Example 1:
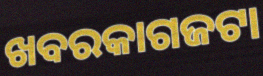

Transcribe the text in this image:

ଖବରକାଗଜଟା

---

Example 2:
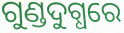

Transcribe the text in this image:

ଗୁଣ୍ଡଦୁଗ୍ଧରେ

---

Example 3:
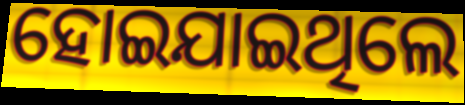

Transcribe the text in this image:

ହୋଇଯାଇଥିଲେ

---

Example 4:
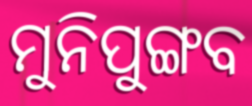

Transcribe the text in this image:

ମୁନିପୁଙ୍ଗବ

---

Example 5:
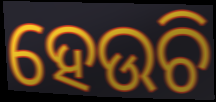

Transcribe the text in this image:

ହେଉଚି